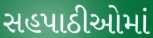
સહપાઠીઓમાં